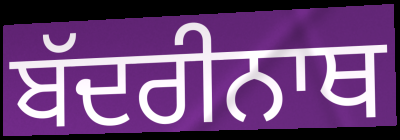
ਬੱਦਰੀਨਾਥ